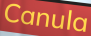
Canula